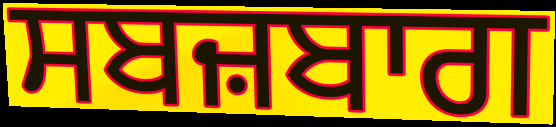
ਸਬਜ਼ਬਾਗ